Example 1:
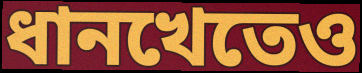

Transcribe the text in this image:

ধানখেতেও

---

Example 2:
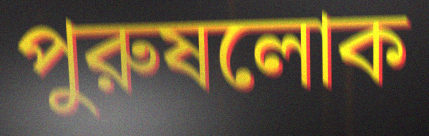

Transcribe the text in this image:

পুরুষলোক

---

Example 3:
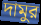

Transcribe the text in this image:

দামুর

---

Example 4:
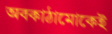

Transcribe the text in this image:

অবকাঠামোকেই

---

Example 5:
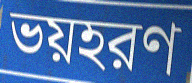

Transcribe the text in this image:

ভয়হরণ